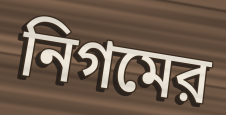
নিগমের